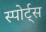
स्पोर्ट्स